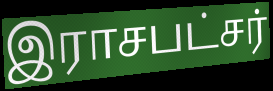
இராசபட்சர்